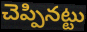
చెప్పినట్టు